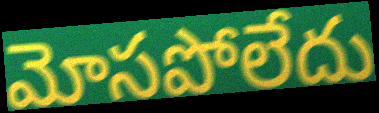
మోసపోలేదు